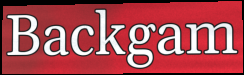
Backgam